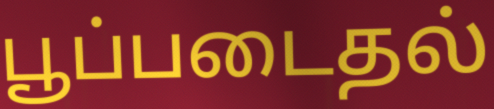
பூப்படைதல்